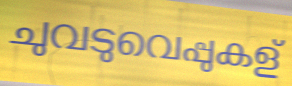
ചുവടുവെപ്പുകള്